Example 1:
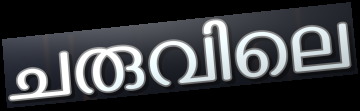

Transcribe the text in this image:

ചരുവിലെ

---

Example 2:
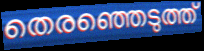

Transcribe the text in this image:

തെരഞ്ഞെടുത്ത്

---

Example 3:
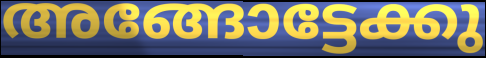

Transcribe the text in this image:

അങ്ങോട്ടേക്കു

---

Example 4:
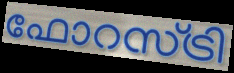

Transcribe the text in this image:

ഫോറസ്ട്രി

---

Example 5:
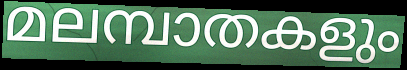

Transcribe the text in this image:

മലമ്പാതകളും